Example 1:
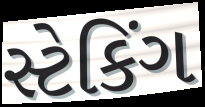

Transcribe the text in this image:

સ્ટેકિંગ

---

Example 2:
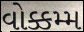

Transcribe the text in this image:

વોક્કમ્મ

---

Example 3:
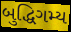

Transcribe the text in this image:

બુદ્ધિગમ્ય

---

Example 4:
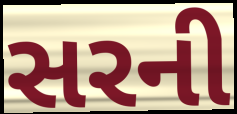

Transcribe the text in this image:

સરની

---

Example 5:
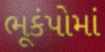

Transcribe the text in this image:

ભૂકંપોમાં